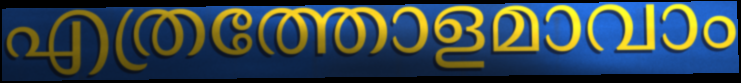
എത്രത്തോളമാവാം